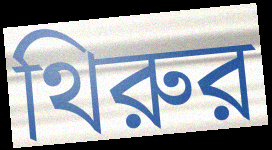
থিরুর